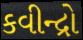
કવીન્દ્રો